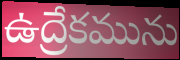
ఉద్రేకమును